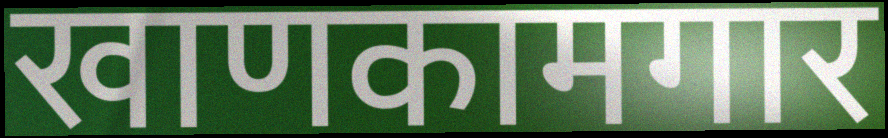
खाणकामगार